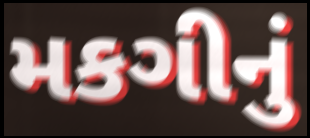
મકગીનું